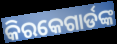
କିରକେଗାର୍ଡଙ୍କ